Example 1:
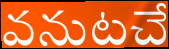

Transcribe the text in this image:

వనుటచే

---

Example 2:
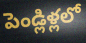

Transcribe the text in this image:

పెండ్లిళ్లలో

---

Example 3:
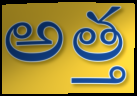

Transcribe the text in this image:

అత్త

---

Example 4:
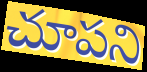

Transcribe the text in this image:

చూపని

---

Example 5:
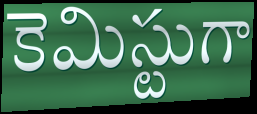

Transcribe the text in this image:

కెమిస్టుగా